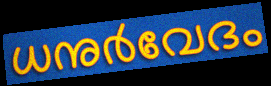
ധനുർവേദം